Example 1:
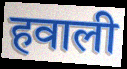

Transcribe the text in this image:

हवाली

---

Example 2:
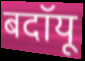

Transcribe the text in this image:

बदॉयू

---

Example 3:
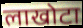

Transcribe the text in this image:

लाखोटा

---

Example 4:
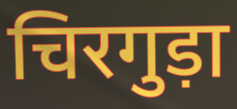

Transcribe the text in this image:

चिरगुड़ा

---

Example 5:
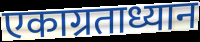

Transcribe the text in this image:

एकाग्रताध्यान